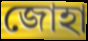
জোহা